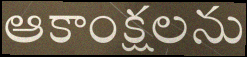
ఆకాంక్షలను